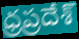
ధ్రప్రదేశ్